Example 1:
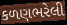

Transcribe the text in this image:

કળણભરેલી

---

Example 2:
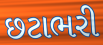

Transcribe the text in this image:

છટાભરી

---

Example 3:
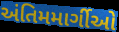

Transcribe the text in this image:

અંતિમમાર્ગીઓ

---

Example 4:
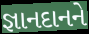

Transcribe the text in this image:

જ્ઞાનદાનને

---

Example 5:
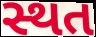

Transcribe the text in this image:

સ્થત